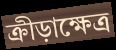
ক্রীড়াক্ষেত্র